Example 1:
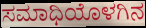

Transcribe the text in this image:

ಸಮಾಧಿಯೊಳಗಿನ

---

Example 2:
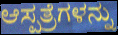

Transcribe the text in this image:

ಆಸ್ಪತ್ರೆಗಳನ್ನು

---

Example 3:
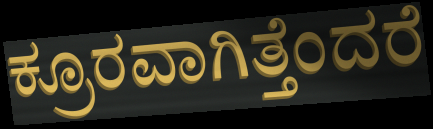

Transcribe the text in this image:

ಕ್ರೂರವಾಗಿತ್ತೆಂದರೆ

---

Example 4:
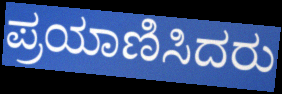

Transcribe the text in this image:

ಪ್ರಯಾಣಿಸಿದರು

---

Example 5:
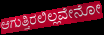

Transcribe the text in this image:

ಆಗುತ್ತಿರಲಿಲ್ಲವೇನೋ